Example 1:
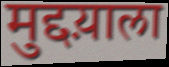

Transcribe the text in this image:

मुद्दय़ाला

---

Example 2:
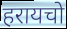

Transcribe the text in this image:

हरायचो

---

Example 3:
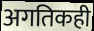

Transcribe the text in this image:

अगतिकही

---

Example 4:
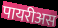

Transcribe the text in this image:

पायरीअस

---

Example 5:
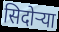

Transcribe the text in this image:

सिदोर्‍या